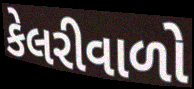
કેલરીવાળો